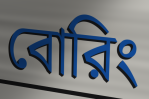
বোরিং